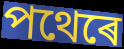
পথেৰে